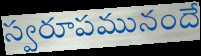
స్వరూపమునందే